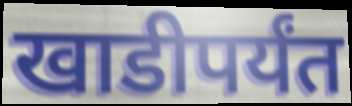
खाडीपर्यंत